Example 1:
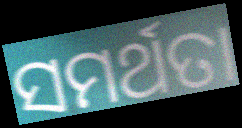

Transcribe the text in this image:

ସମର୍ଥତା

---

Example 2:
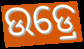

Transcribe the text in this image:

ଉଡ୍ରେ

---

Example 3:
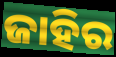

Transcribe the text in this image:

ଜାହିର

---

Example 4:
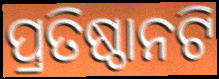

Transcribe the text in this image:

ପ୍ରତିଷ୍ଠାନଟି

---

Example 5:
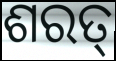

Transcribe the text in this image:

ଶରତ୍